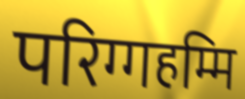
परिग्गहम्मि